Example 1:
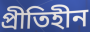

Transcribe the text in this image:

প্রীতিহীন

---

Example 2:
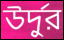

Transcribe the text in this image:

উর্দুর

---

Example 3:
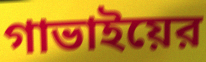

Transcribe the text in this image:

গাভাইয়ের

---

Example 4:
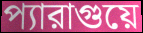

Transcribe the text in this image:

প্যারাগুয়ে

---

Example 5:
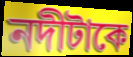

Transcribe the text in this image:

নদীটাকে